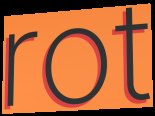
rot